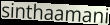
sinthaamani